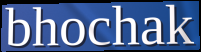
bhochak